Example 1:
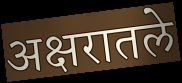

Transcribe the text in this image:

अक्षरातले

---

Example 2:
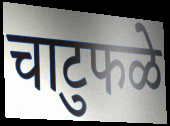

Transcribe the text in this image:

चाटुफळे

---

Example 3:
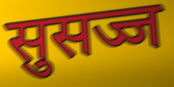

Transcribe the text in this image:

सुसज्ज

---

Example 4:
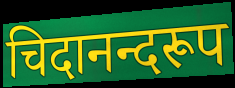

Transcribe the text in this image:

चिदानन्दरूप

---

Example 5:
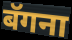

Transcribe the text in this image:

बॅगना